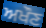
ਅਖੌਣ